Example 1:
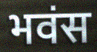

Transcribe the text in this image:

भवंस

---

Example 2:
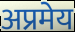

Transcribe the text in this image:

अप्रमेय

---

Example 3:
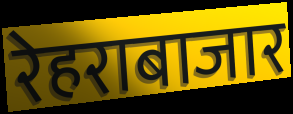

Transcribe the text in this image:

रेहराबाजार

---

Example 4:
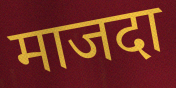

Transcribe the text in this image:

माजदा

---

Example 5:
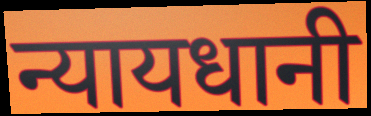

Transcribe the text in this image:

न्यायधानी